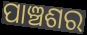
ପାଞ୍ଚଶର